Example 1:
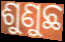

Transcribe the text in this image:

ଶୁଣୁଛ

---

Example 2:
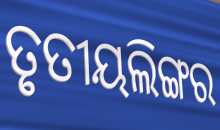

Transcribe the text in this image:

ତୃତୀୟଲିଙ୍ଗର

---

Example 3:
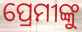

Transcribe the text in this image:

ପ୍ରେମୀଙ୍କୁ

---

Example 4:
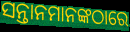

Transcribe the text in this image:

ସନ୍ତାନମାନଙ୍କଠାରେ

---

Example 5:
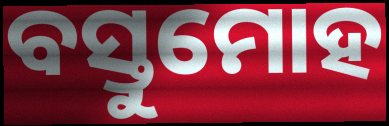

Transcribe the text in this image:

ବସ୍ତୁମୋହ